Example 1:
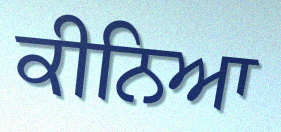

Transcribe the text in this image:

ਕੀਨਿਆ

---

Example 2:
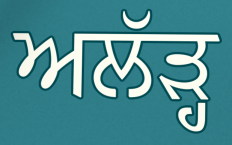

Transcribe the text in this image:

ਅਲੱੜ੍ਹ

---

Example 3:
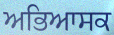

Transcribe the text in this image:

ਅਭਿਆਸਕ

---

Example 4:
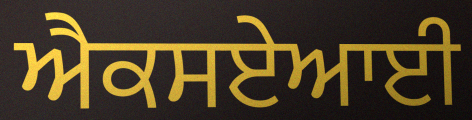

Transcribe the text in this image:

ਐਕਸਏਆਈ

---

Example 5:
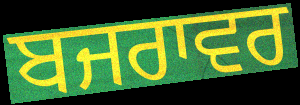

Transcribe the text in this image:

ਬਜਰਾਵਰ